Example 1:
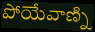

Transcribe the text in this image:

పోయేవాణ్ని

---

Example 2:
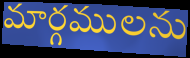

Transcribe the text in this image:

మార్గములను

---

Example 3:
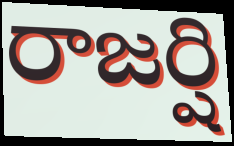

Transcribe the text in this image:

రాజర్షి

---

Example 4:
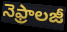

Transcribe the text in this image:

నెఫ్రాలజీ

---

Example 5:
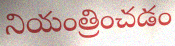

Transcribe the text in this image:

నియంత్రించడం